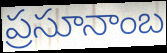
ప్రసూనాంబ